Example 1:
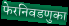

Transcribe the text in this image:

फेरनिवडणुका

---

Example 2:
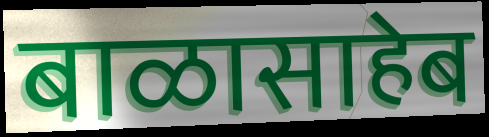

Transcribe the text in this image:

बाळासाहेब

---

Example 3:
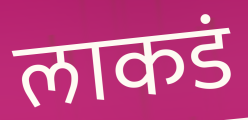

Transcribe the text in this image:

लाकडं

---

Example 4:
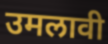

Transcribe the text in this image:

उमलावी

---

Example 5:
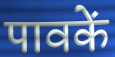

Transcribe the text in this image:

पावकें